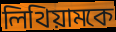
লিথিয়ামকে